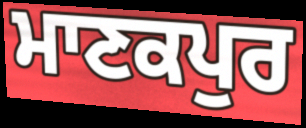
ਮਾਣਕਪੁਰ